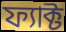
ফ্যাক্ট